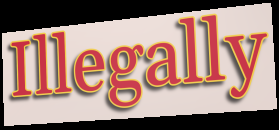
Illegally